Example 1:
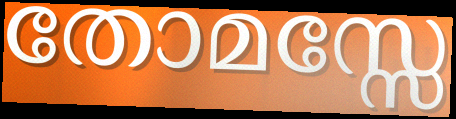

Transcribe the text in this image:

തോമസ്സേ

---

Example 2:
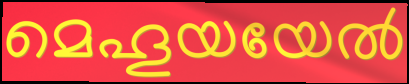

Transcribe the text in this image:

മെഹൂയയേൽ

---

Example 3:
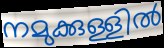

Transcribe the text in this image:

നമുക്കുള്ളിൽ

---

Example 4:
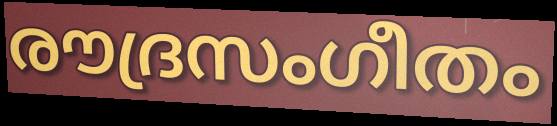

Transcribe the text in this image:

രൗദ്രസംഗീതം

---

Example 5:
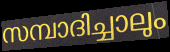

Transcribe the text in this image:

സമ്പാദിച്ചാലും